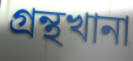
গ্রন্থখানা